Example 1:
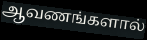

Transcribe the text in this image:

ஆவணங்களால்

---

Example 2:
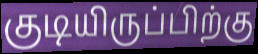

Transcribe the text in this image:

குடியிருப்பிற்கு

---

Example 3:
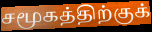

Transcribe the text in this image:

சமூகத்திற்குக்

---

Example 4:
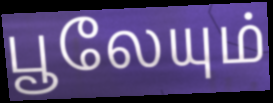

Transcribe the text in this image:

பூலேயும்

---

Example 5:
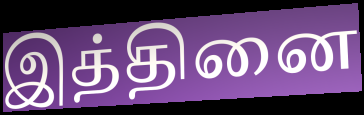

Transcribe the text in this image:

இத்தினை